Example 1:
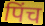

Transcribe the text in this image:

पिंच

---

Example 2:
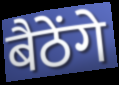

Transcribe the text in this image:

बैठेंगे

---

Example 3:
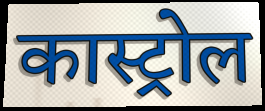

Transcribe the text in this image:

कास्ट्रोल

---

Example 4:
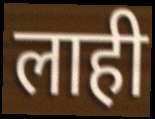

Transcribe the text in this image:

लाही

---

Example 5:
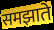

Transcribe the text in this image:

समझाते